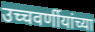
उच्चवर्णीयांच्या